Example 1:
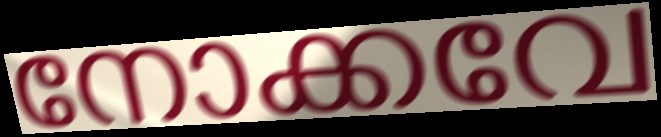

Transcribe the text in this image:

നോക്കവേ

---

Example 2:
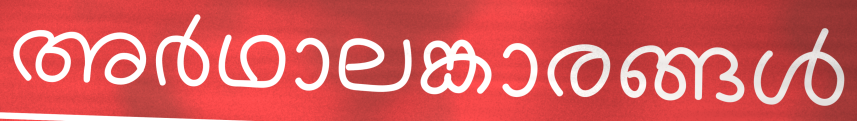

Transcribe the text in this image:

അർഥാലങ്കാരങ്ങൾ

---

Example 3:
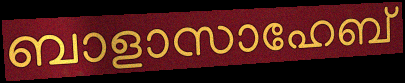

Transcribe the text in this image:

ബാളാസാഹേബ്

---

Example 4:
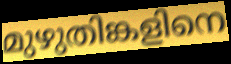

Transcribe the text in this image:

മുഴുതിങ്കളിനെ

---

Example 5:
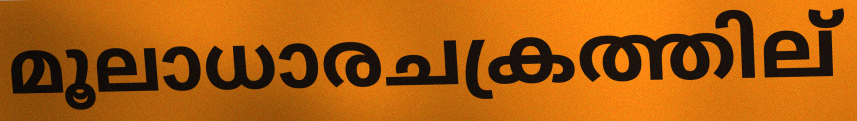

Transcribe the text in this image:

മൂലാധാരചക്രത്തില്